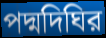
পদ্মদিঘির